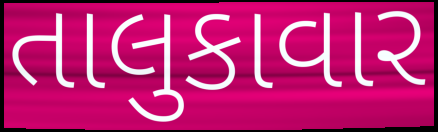
તાલુકાવાર